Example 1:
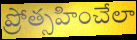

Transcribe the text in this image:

ప్రోత్సహించేలా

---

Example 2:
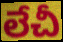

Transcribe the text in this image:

లేచీ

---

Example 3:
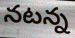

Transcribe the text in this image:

నటన్న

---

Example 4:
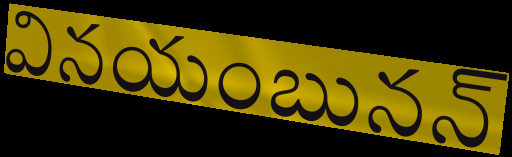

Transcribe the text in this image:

వినయంబునన్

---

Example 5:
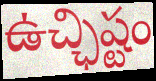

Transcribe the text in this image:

ఉచ్ఛిష్టం